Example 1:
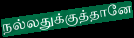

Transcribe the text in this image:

நல்லதுக்குத்தானே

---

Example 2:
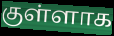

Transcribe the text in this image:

குள்ளாக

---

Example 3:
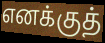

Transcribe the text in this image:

எனக்குத்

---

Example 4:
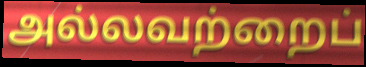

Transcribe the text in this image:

அல்லவற்றைப்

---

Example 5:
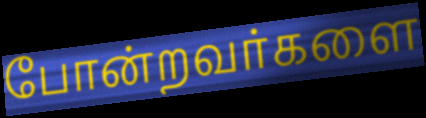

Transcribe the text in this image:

போன்றவர்களை